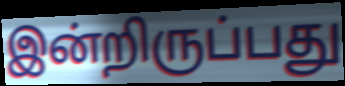
இன்றிருப்பது